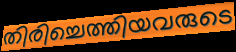
തിരിച്ചെത്തിയവരുടെ